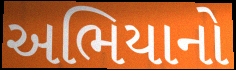
અભિયાનો